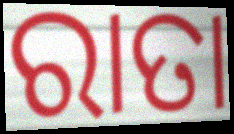
ରାତା